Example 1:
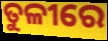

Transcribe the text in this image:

ତୁଳୀରେ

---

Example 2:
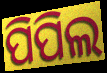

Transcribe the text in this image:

ପିପିଲ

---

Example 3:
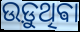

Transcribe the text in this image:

ଉଡ଼ୁଥିଵା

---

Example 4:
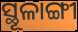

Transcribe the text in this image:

ସ୍ଥୂଳାଙ୍ଗୀ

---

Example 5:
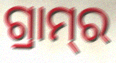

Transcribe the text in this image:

ଗ୍ରାମ୍‌ର